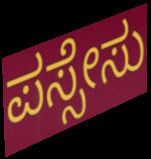
ಪಸ್ಸೇಸು